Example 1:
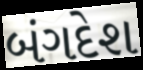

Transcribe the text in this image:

બંગદેશ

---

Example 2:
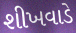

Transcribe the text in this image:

શીખવાડે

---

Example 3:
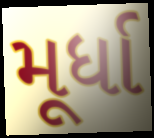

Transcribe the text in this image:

મૂર્ધા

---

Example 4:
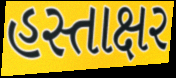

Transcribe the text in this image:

હસ્તાક્ષર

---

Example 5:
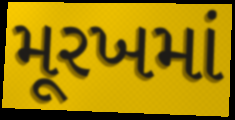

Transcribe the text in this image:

મૂરખમાં